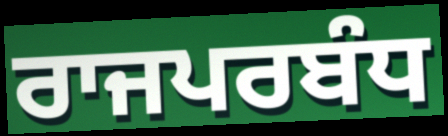
ਰਾਜਪਰਬੰਧ